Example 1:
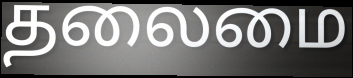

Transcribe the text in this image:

தலைமை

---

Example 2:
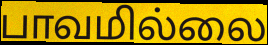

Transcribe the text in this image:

பாவமில்லை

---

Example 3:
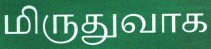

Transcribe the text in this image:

மிருதுவாக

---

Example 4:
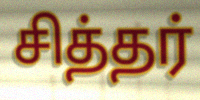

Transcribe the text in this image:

சித்தர்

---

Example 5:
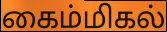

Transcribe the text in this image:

கைம்மிகல்